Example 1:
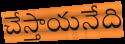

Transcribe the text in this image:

చేస్తాయనేది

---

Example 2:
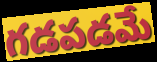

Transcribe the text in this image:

గడపడమే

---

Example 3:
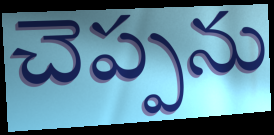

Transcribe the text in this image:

చెప్పను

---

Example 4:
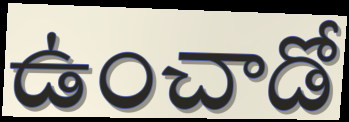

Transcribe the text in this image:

ఉంచాడో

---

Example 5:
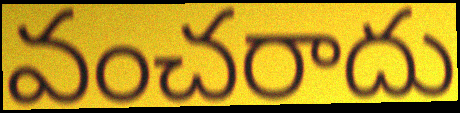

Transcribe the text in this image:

వంచరాదు